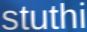
stuthi